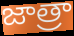
జాత్రా